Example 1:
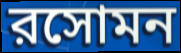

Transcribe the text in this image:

রসোমন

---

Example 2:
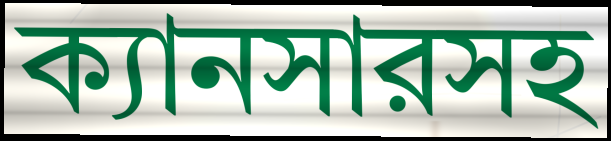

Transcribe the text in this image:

ক্যানসারসহ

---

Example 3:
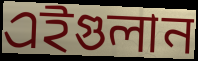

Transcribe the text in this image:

এইগুলান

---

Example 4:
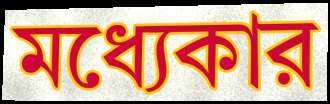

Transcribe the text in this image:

মধ্যেকার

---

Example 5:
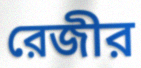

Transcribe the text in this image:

রেজীর